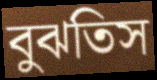
বুঝতিস